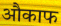
औकाफ